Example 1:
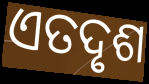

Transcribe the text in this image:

ଏତଦୃଶ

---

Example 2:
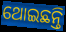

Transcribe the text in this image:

ଥୋଇଛନ୍ତି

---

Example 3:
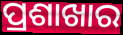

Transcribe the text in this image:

ପ୍ରଶାଖାର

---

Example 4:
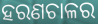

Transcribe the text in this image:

ହରଣଚାଳର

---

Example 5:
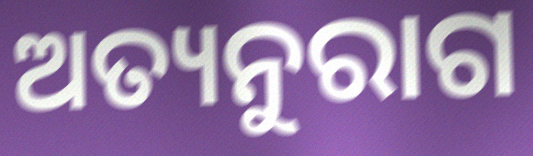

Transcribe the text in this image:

ଅତ୍ୟନୁରାଗ